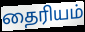
தைரியம்